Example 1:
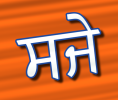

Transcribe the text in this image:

ਸਜੇ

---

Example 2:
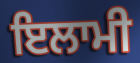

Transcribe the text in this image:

ਇਲਾਮੀ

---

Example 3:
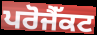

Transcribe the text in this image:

ਪਰੋਜੈੱਕਟ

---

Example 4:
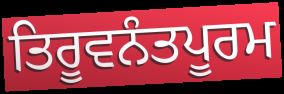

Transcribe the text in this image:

ਤਿਰੂਵਨੰਤਪੂਰਮ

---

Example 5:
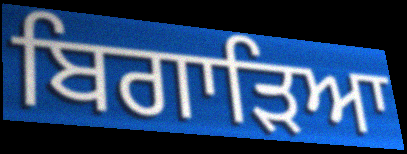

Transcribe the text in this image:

ਬਿਗਾੜਿਆ